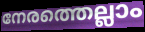
നേരത്തെല്ലാം